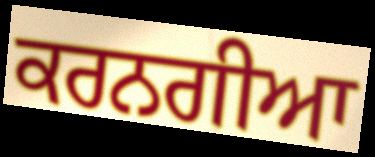
ਕਰਨਗੀਆ